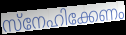
സ്നേഹിക്കേണം